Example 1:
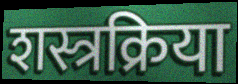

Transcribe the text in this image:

शस्त्रक्रिया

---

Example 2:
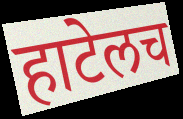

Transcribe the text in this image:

हाटेलच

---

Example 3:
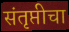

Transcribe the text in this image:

संतृप्तीचा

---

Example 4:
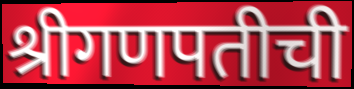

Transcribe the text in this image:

श्रीगणपतीची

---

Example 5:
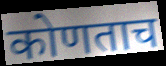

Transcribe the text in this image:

कोणताच